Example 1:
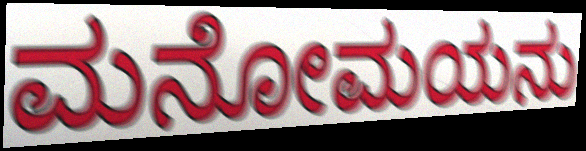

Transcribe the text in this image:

ಮನೋಮಯನು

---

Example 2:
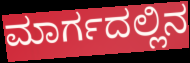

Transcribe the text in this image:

ಮಾರ್ಗದಲ್ಲಿನ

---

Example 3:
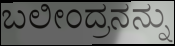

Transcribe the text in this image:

ಬಲೀಂದ್ರನನ್ನು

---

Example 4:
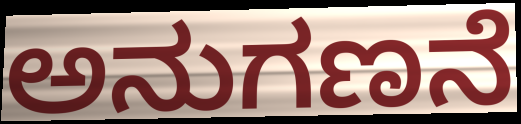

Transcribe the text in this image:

ಅನುಗಣನೆ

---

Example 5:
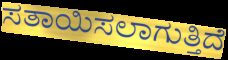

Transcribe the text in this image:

ಸತಾಯಿಸಲಾಗುತ್ತಿದೆ